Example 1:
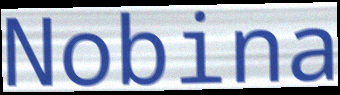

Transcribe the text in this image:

Nobina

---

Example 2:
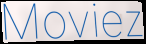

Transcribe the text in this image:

Moviez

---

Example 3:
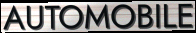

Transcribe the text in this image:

AUTOMOBILE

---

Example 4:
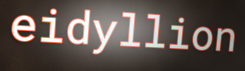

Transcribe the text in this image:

eidyllion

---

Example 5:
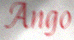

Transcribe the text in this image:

Ango